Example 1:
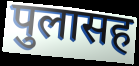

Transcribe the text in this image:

पुलासह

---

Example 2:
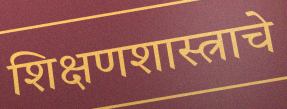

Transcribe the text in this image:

शिक्षणशास्त्राचे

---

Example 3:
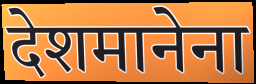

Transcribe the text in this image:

देशमानेना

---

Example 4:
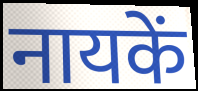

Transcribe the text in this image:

नायकें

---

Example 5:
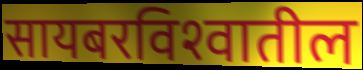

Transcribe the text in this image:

सायबरविश्वातील